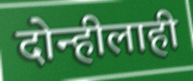
दोन्हीलाही